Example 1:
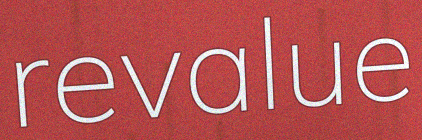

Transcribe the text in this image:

revalue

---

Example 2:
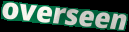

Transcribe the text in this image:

overseen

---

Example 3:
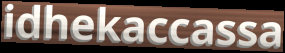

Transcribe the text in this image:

idhekaccassa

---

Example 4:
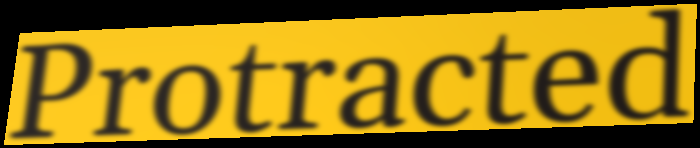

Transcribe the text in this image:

Protracted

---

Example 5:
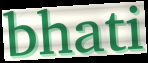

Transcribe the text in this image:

bhati